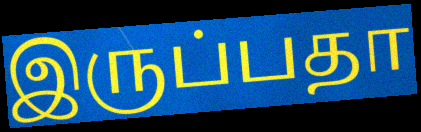
இருப்பதா